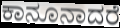
ಕಾನೂನಾದರೆ